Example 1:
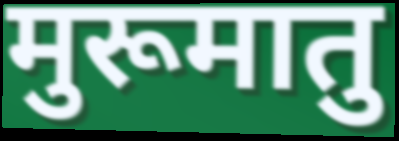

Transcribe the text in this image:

मुरूमातु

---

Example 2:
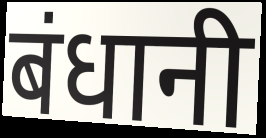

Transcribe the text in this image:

बंधानी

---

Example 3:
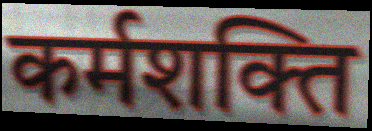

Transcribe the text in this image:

कर्मशक्ति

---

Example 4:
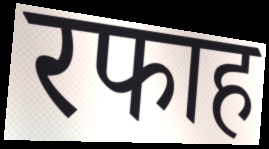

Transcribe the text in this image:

रफाह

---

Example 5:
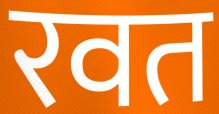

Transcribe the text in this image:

रवत